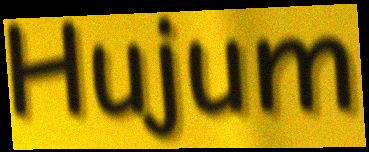
Hujum